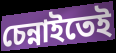
চেন্নাইতেই